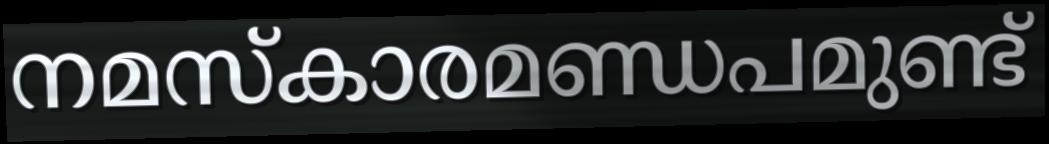
നമസ്കാരമണ്ഡപമുണ്ട്